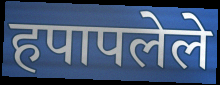
हपापलेले